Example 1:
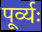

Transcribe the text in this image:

पूर्व्यः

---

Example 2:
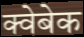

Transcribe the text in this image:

क्वेबेक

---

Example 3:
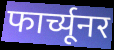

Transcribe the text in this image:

फार्च्यूनर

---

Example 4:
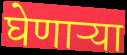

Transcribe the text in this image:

घेणाऱ्या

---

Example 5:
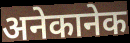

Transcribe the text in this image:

अनेकानेक